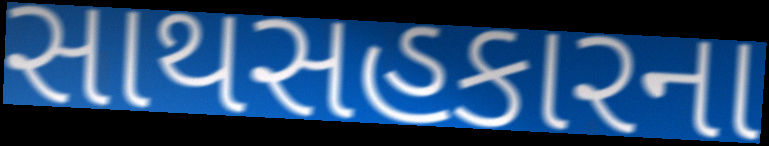
સાથસહકારના